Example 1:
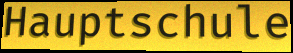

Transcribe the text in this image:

Hauptschule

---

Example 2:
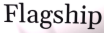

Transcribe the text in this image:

Flagship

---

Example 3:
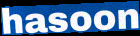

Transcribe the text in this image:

hasoon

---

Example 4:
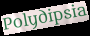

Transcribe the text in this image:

Polydipsia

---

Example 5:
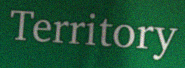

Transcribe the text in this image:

Territory